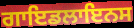
ਗਾਇਡਲਾਇਨਸ